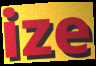
ize